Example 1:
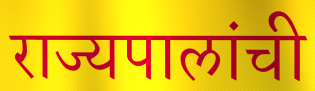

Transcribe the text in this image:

राज्यपालांची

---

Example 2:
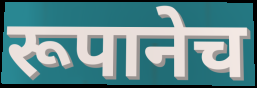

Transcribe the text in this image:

रूपानेच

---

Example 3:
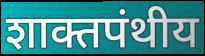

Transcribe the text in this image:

शाक्तपंथीय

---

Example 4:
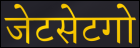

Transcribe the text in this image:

जेटसेटगो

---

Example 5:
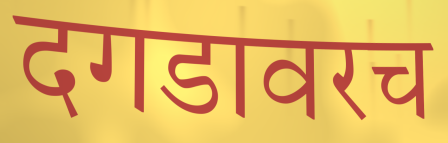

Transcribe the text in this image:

दगडावरच